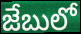
జేబులో